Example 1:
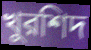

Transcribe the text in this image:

খুরশিদ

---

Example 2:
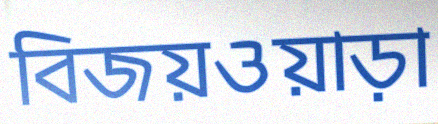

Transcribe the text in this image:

বিজয়ওয়াড়া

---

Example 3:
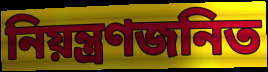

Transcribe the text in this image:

নিয়ন্ত্রণজনিত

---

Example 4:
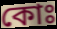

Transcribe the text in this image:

কোঃ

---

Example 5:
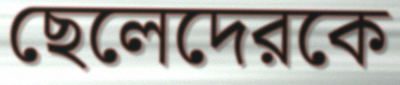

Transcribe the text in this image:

ছেলেদেরকে